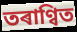
তৰাণ্বিত